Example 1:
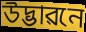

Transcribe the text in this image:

উদ্ভাৱনে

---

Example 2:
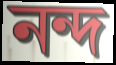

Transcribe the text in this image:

নন্দ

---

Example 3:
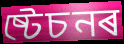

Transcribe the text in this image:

ষ্টেচনৰ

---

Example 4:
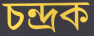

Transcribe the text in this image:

চন্দ্ৰক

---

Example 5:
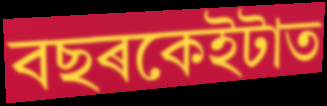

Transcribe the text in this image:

বছৰকেইটাত